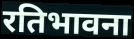
रतिभावना